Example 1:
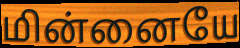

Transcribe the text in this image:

மின்னையே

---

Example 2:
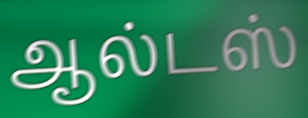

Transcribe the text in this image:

ஆல்டஸ்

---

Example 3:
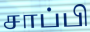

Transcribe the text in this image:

சாப்பி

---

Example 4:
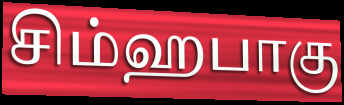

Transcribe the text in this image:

சிம்ஹபாகு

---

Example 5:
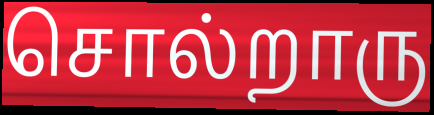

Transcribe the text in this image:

சொல்றாரு